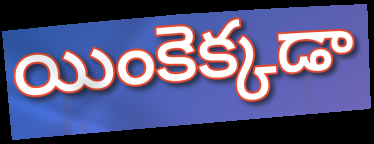
యింకెక్కడా